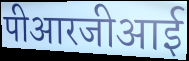
पीआरजीआई